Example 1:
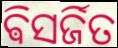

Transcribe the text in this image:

ଵିସର୍ଜିତ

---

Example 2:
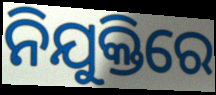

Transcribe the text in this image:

ନିଯୁକ୍ତିରେ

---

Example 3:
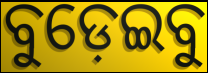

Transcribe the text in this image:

ବୁଡ଼େଇବୁ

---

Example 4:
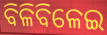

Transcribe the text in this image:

ବିଳିବିଳେଇ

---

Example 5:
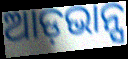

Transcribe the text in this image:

ଆଡ଼ଭାନ୍ସ